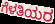
ಗೆಳತಿಯರ